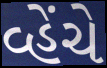
વ્હેંચે